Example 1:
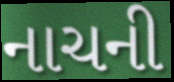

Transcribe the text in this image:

નાચની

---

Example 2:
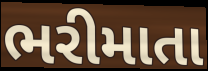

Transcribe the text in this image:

ભરીમાતા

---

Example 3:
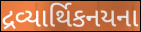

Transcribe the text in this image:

દ્રવ્યાર્થિકનયના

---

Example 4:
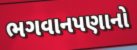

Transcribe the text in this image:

ભગવાનપણાનો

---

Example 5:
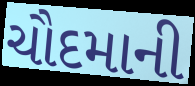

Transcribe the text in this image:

ચૌદમાની